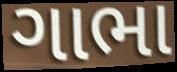
ગાભા